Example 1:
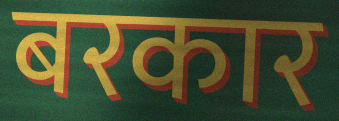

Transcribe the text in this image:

बरकार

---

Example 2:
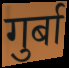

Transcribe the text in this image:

गुर्बा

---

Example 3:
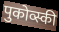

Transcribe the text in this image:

पुकोव्स्की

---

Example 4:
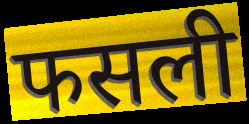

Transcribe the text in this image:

फसली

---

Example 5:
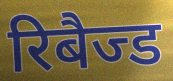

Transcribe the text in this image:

रिबैज्ड